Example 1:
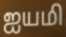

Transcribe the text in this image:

ஐயமி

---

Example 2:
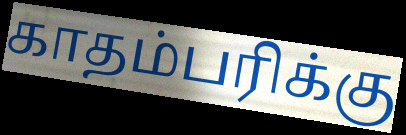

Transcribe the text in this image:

காதம்பரிக்கு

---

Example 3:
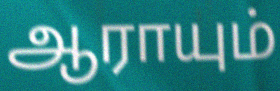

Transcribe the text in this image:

ஆராயும்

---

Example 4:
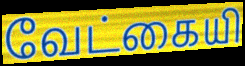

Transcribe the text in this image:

வேட்கையி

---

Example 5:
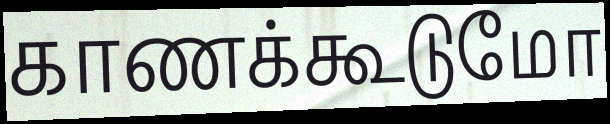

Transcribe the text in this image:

காணக்கூடுமோ